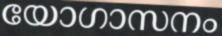
യോഗാസനം